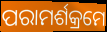
ପରାମର୍ଶକ୍ରମେ